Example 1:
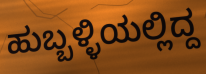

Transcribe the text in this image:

ಹುಬ್ಬಳ್ಳಿಯಲ್ಲಿದ್ದ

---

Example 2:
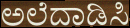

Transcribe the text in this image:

ಅಲೆದಾಡಿಸಿ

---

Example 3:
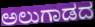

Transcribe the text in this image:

ಅಲುಗಾಡದ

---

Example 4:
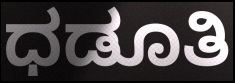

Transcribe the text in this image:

ಧಡೂತಿ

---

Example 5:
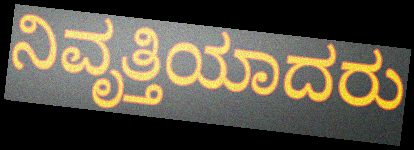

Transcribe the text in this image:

ನಿವೃತ್ತಿಯಾದರು